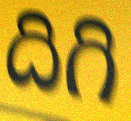
దిగి